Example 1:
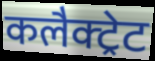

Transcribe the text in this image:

कलैक्ट्रेट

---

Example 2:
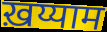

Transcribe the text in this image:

ख़य्याम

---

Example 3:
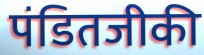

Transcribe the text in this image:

पंडितजीकी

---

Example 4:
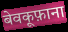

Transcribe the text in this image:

बेवकूफ़ाना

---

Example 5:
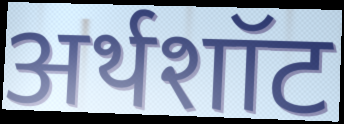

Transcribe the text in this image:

अर्थशॉट